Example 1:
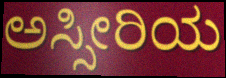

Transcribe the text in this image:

ಅಸ್ಸೀರಿಯ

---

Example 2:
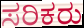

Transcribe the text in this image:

ಸರಿಕರು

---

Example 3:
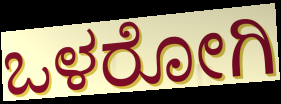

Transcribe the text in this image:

ಒಳರೋಗಿ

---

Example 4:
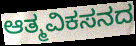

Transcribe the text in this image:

ಆತ್ಮವಿಕಸನದ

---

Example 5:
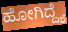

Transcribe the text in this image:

ಹೋಗಿದ್ದ್ಯೆ